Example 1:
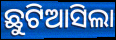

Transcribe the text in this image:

ଛୁଟିଆସିଲା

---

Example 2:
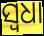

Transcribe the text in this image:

ସ୍ୱଧା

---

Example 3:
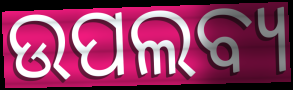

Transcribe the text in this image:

ଉପଲବ୍ୟ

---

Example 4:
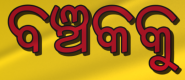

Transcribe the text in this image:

ବଞ୍ଚକକୁ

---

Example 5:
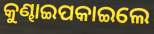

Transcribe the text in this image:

କୁଣ୍ଢାଇପକାଇଲେ